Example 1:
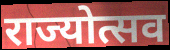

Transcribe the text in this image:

राज्योत्सव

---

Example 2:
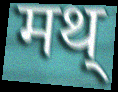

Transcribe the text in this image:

मथ्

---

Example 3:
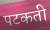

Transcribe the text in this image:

पटकती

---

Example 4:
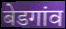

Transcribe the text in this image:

बेडगांव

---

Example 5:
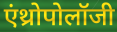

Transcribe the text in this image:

एंथ्रोपोलॉजी